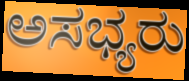
ಅಸಭ್ಯರು